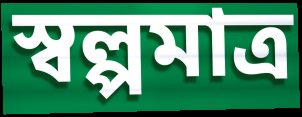
স্বল্পমাত্র